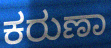
ಕರುಣಾ